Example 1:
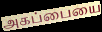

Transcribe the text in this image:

அகப்பையை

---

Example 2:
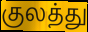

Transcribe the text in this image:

குலத்து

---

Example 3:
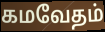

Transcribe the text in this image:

கமவேதம்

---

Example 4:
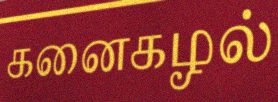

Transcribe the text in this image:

கனைகழல்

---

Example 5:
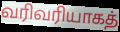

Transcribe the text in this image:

வரிவரியாகத்